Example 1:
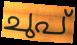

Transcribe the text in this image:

ചുപ്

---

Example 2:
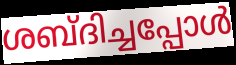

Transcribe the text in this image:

ശബ്ദിച്ചപ്പോൾ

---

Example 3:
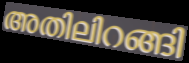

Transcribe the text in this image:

അതിലിറങ്ങി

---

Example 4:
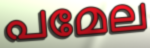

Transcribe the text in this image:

പമേല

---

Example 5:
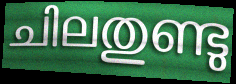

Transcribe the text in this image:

ചിലതുണ്ടു